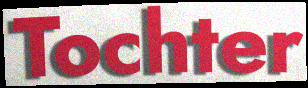
Tochter